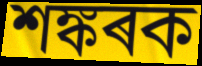
শঙ্কৰক